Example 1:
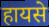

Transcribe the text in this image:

हायसे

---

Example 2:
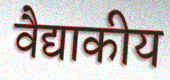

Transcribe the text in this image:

वैद्याकीय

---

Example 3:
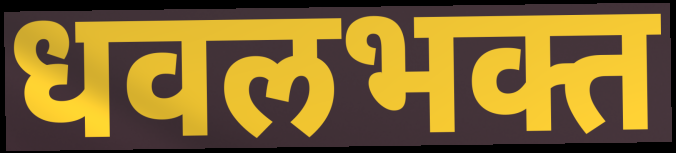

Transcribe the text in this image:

धवलभक्त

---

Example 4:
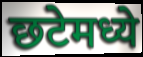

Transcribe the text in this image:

छटेमध्ये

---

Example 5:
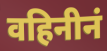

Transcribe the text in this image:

वहिनीनं